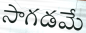
సాగడమే